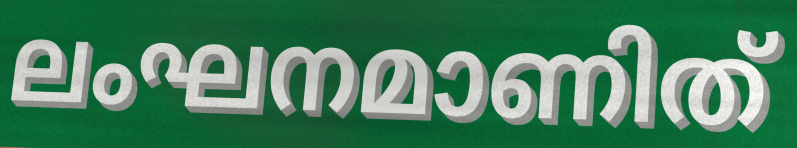
ലംഘനമാണിത്